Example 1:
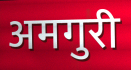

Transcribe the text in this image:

अमगुरी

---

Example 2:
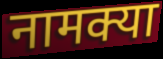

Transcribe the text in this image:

नामक्या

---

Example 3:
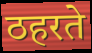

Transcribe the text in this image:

ठहरते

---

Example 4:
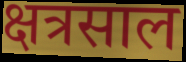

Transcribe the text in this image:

क्षत्रसाल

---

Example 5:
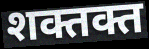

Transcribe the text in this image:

शक्तक्त